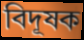
বিদূষক